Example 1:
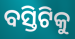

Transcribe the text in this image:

ବସ୍ତିଟିକୁ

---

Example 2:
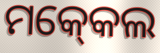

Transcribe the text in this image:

ମକ୍‍କେଲ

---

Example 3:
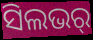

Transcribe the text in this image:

ସିଲଭର୍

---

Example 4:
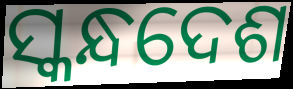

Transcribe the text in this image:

ସ୍କନ୍ଧଦେଶ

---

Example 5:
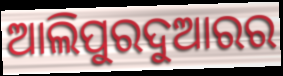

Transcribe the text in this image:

ଆଲିପୁରଦୁଆରର